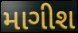
માગીશ